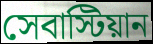
সেবাস্টিয়ান